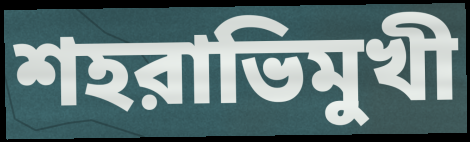
শহরাভিমুখী